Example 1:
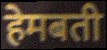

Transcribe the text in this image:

हेमबती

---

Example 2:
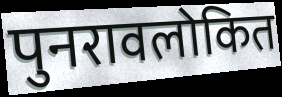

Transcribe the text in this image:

पुनरावलोकित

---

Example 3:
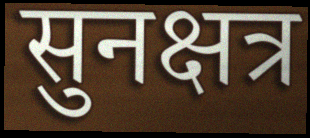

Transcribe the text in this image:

सुनक्षत्र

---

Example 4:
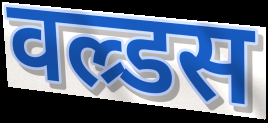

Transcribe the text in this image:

वल्र्डस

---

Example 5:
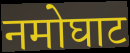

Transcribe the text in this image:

नमोघाट